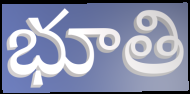
భూతి